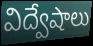
విద్వేషాలు